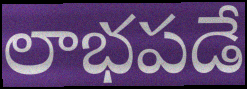
లాభపడే